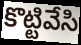
కొట్టివేసి